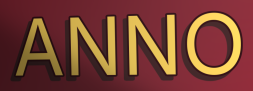
ANNO